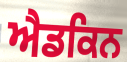
ਐਡਕਿਨ